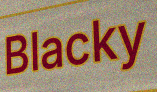
Blacky